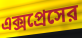
এক্সপ্রেসের